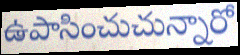
ఉపాసించుచున్నారో